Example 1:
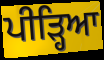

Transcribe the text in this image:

ਪੀੜ੍ਹਿਆ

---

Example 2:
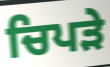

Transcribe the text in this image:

ਚਿਪੜੇ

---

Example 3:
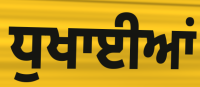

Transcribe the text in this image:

ਧੁਖਾਈਆਂ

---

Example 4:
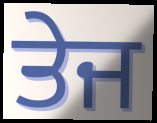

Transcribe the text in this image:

ਤੇਜ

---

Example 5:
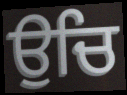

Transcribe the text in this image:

ਉਚਿ